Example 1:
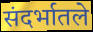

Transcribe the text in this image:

संदर्भातले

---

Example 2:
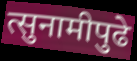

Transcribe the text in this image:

त्सुनामीपुढे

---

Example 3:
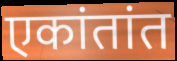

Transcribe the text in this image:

एकांतांत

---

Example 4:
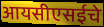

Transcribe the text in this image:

आयसीएसईचे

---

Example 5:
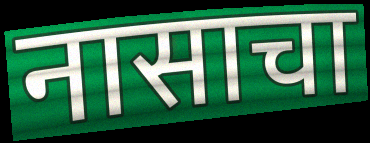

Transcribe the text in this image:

नासाचा